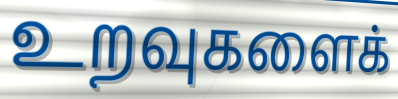
உறவுகளைக்